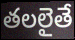
తలలైతే